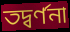
তদ্বর্ণনা